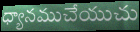
ధ్యానముచేయుచు